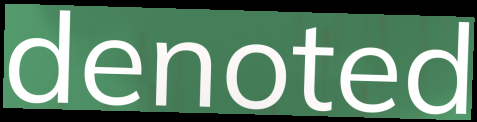
denoted